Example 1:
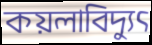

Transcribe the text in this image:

কয়লাবিদ্যুৎ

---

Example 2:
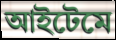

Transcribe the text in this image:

আইটেমে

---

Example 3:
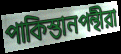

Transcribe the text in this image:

পাকিস্তানপন্থীরা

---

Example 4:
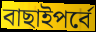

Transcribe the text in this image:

বাছাইপর্বে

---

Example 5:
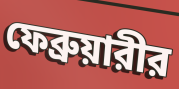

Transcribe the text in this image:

ফেব্রুয়ারীর